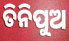
ତିନିପୁଅ